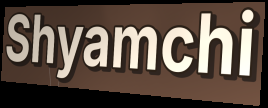
Shyamchi